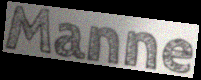
Manne